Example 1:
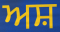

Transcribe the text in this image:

ਅਸ਼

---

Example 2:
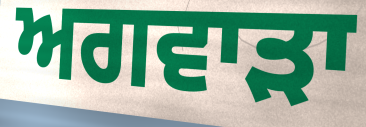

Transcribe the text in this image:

ਅਗਵਾੜਾ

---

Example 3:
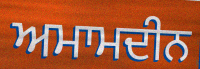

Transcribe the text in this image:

ਅਮਾਮਦੀਨ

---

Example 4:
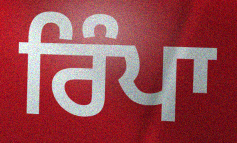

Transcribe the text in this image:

ਰਿੰਪਾ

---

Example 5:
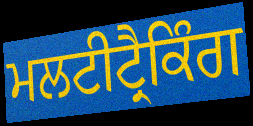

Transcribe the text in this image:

ਮਲਟੀਟ੍ਰੈਕਿੰਗ